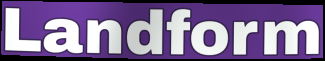
Landform